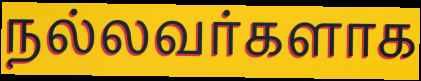
நல்லவர்களாக